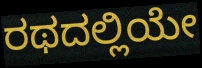
ರಥದಲ್ಲಿಯೇ